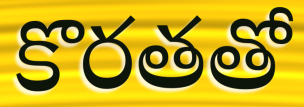
కొరతతో